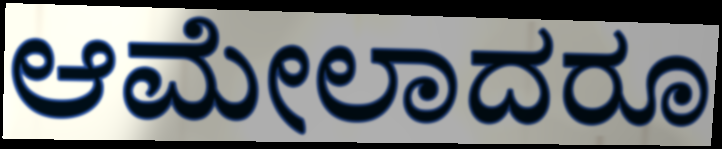
ಆಮೇಲಾದರೂ